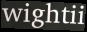
wightii